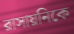
রাসায়নিকে